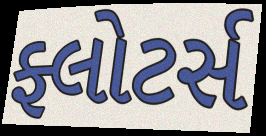
ફ્લોટર્સ